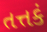
તત્તકં